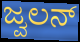
ಜ್ವಲನ್